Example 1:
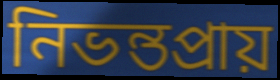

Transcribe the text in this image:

নিভন্তপ্রায়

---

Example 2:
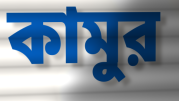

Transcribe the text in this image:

কামুর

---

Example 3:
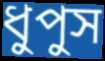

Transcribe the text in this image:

ধুপুস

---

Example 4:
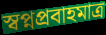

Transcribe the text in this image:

স্বপ্নপ্রবাহমাত্র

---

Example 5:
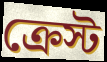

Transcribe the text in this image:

ক্রেস্ট